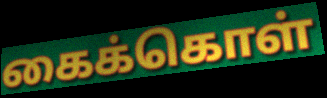
கைக்கொள்